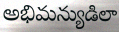
అభిమన్యుడిలా